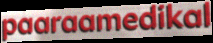
paaraamedikal